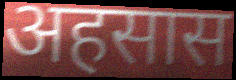
अहसास